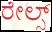
ರೇಲ್ಸ್